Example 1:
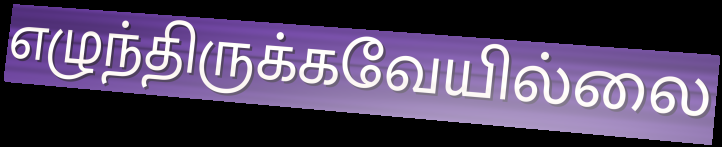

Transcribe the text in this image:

எழுந்திருக்கவேயில்லை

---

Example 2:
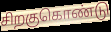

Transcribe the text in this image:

சிறகுகொண்டு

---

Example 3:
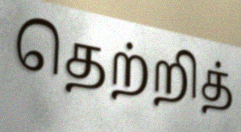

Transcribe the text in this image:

தெற்றித்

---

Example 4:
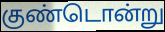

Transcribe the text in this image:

குண்டொன்று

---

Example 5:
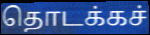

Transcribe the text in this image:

தொடக்கச்